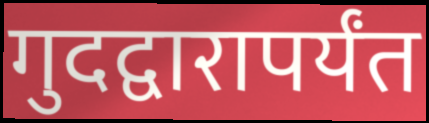
गुदद्वारापर्यंत